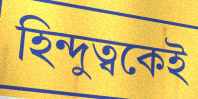
হিন্দুত্বকেই